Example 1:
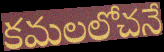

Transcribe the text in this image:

కమలలోచనే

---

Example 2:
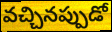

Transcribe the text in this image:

వచ్చినప్పుడో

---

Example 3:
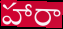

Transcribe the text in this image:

హారా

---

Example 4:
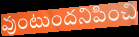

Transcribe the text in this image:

వుంటుందనిపించి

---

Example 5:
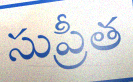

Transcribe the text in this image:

సుప్రీత